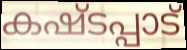
കഷ്ടപ്പാട്